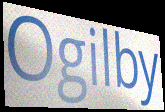
Ogilby